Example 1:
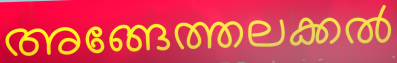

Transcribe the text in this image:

അങ്ങേത്തലക്കൽ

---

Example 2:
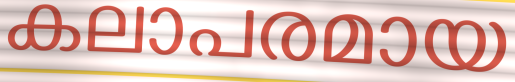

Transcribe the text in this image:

കലാപരമായ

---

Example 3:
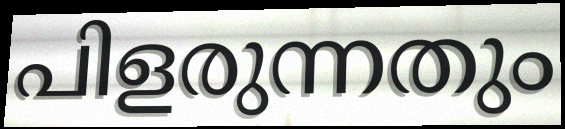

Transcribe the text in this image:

പിളരുന്നതും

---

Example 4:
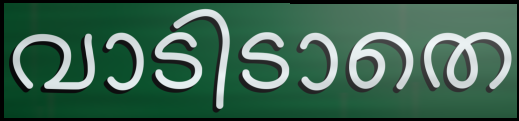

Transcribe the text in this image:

വാടിടാതെ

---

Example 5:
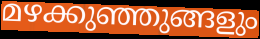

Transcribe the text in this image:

മഴക്കുഞ്ഞുങ്ങളും